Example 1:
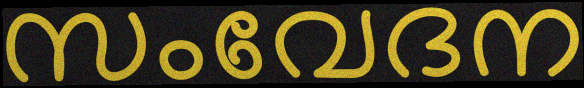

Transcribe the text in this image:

സംവേദന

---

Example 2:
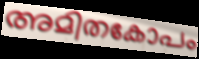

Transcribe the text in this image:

അമിതകോപം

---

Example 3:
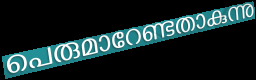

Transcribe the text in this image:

പെരുമാറേണ്ടതാകുന്നു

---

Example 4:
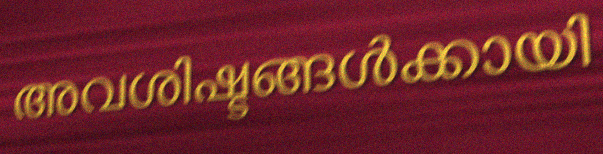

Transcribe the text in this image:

അവശിഷ്ടങ്ങൾക്കായി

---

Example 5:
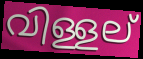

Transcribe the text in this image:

വിള്ളല്